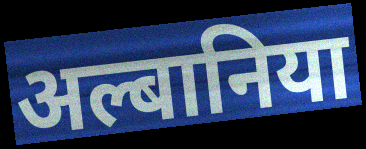
अल्बानिया